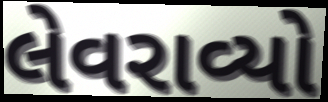
લેવરાવ્યો